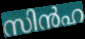
സിൻഹ